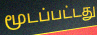
மூடப்பட்டது